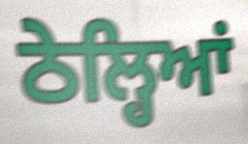
ਠੇਲ੍ਹਿਆਂ